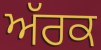
ਅੱਰਕ